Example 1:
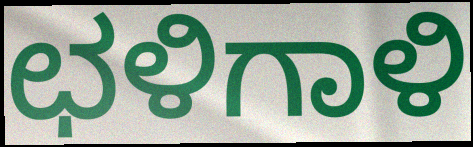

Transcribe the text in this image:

ಛಳಿಗಾಳಿ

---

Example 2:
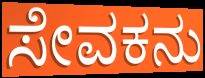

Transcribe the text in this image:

ಸೇವಕನು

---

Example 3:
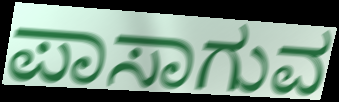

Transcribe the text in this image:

ಪಾಸಾಗುವ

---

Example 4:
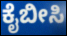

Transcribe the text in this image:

ಕೈಬೀಸಿ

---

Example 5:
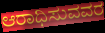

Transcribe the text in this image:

ಆರಾಧಿಸುವವರ